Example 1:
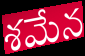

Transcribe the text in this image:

శమేన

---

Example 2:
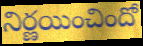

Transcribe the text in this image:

నిర్ణయించిందో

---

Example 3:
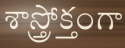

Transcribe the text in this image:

శాస్త్రోక్తంగా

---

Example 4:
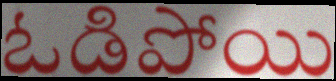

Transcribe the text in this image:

ఓడిపోయి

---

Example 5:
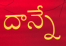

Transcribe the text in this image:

దాన్నే